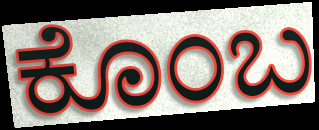
ಕೊಂಬ